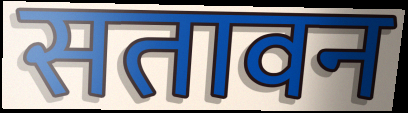
सतावन